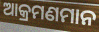
ଆକ୍ରମଣମାନ